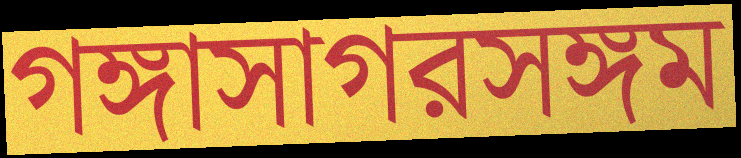
গঙ্গাসাগরসঙ্গম